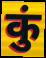
कुं